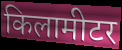
किलामीटर